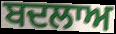
ਬਦਲਾਅ